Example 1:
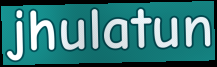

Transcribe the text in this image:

jhulatun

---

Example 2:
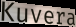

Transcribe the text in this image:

Kuvera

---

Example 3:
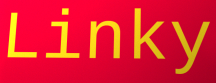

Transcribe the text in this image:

Linky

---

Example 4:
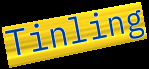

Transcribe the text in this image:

Tinling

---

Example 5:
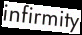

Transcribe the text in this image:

infirmity